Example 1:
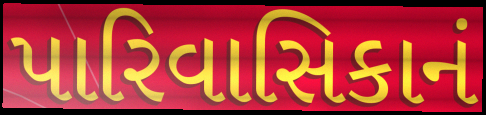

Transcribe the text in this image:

પારિવાસિકાનં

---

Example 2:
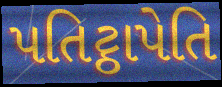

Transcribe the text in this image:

પતિટ્ઠાપેતિ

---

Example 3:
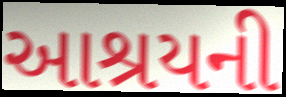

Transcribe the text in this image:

આશ્રયની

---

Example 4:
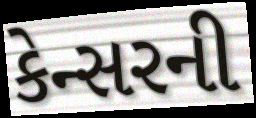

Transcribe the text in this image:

કેન્સરની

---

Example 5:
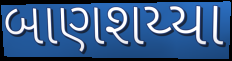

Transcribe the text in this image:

બાણશય્યા